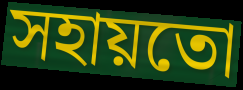
সহায়তো